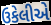
ઉકેલીએ